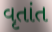
વૃતાંત